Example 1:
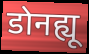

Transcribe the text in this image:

डोनह्यू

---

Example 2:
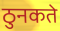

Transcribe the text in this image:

ठुनकते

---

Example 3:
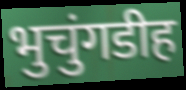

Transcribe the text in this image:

भुचुंगडीह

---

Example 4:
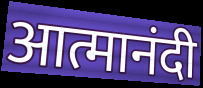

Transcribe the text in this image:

आत्मानंदी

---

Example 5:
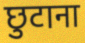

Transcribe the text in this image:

छुटाना